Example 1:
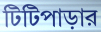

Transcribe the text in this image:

টিটিপাড়ার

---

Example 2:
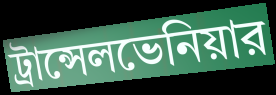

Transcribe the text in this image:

ট্রান্সেলভেনিয়ার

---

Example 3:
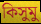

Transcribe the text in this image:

কিসুমু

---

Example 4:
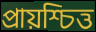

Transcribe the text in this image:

প্রায়শ্চিত্ত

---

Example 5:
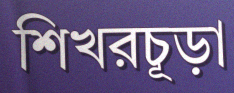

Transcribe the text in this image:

শিখরচূড়া